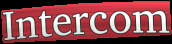
Intercom